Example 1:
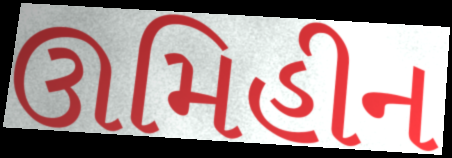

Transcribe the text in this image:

ઊમિહીન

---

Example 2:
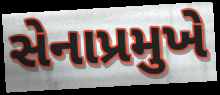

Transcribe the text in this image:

સેનાપ્રમુખે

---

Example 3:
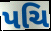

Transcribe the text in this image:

પચિ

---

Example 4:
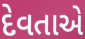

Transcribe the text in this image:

દેવતાએ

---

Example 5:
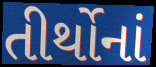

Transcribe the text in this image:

તીર્થોનાં